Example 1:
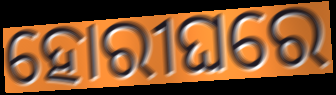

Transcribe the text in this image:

ହୋରୀଘରେ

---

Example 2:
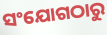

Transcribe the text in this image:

ସଂଯୋଗଠାରୁ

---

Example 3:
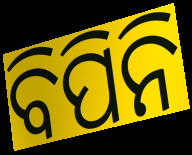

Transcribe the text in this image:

ବିପିନି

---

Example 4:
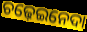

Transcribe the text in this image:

ଚଢ଼େଇନେଦା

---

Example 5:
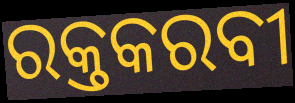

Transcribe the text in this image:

ରକ୍ତକରବୀ